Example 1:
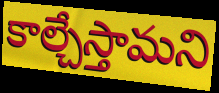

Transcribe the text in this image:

కాల్చేస్తామని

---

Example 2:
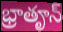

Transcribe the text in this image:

భ్రాతౄన్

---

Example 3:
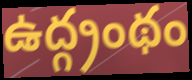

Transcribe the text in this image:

ఉద్గ్రంథం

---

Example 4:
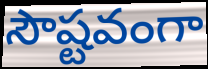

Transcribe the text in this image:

సౌష్టవంగా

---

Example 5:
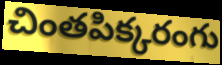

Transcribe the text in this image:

చింతపిక్కరంగు